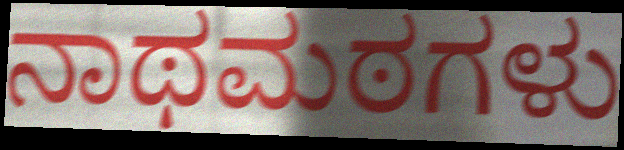
ನಾಥಮಠಗಳು